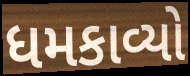
ધમકાવ્યો